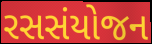
રસસંયોજન